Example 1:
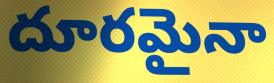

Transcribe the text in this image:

దూరమైనా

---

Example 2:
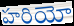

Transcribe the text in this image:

హరియో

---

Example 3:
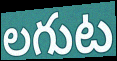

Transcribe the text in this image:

లగుట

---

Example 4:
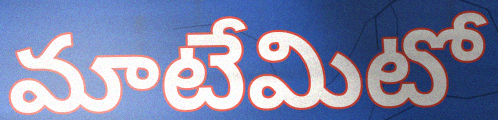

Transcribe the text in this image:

మాటేమిటో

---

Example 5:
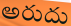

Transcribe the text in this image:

అరుదు